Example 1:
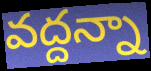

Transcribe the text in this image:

వద్దన్నా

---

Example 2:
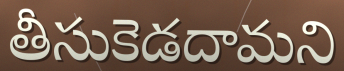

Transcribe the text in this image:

తీసుకెడదామని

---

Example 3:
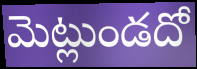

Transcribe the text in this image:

మెట్లుండదో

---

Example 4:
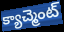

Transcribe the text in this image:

క్యాచ్మెంట్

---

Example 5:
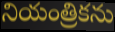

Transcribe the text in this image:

నియంత్రికను